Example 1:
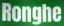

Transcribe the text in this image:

Ronghe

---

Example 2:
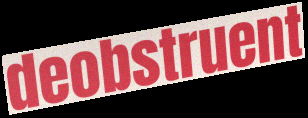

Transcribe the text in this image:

deobstruent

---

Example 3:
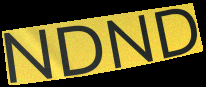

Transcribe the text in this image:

NDND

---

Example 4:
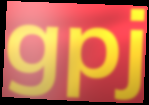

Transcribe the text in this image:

gpj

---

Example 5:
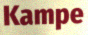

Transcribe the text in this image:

Kampe